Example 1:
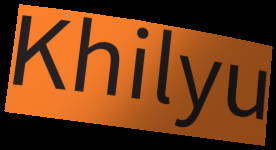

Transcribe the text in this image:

Khilyu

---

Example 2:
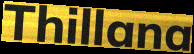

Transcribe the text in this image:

Thillana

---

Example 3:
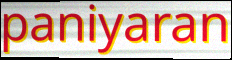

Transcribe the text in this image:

paniyaran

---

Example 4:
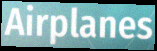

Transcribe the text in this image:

Airplanes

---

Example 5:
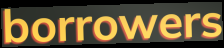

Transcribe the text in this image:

borrowers